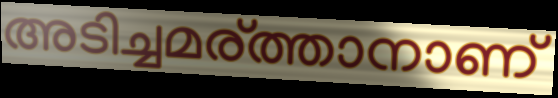
അടിച്ചമര്ത്താനാണ്